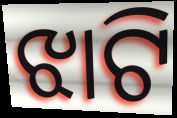
ଝାଟି